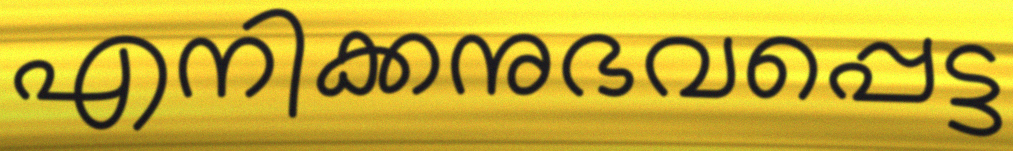
എനിക്കനുഭവപ്പെട്ട